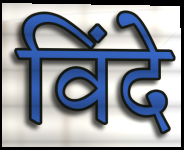
विंदे